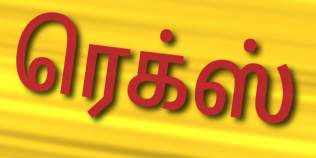
ரெக்ஸ்